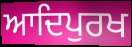
ਆਦਿਪੁਰਖ